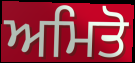
ਅਮਿਤੋ